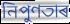
নিপুণতাৰ